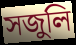
সজুলি